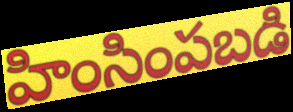
హింసింపబడి